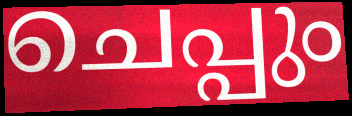
ചെപ്പും